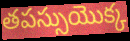
తపస్సుయొక్క